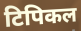
टिपिकल